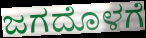
ಜಗದೊಳಗೆ